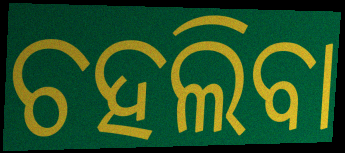
ଚହଲିବା